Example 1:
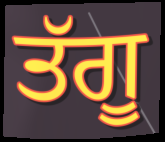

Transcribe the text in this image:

ਤੱਗੂ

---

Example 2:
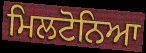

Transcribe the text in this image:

ਮਿਲਟੋਨਿਆ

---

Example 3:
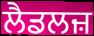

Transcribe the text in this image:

ਲੈਡਲਜ਼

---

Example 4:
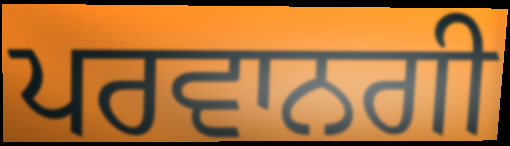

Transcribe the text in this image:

ਪਰਵਾਨਗੀ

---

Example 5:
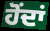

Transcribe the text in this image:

ਹੋਂਦਾਂ